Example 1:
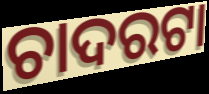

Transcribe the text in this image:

ଚାଦରଟା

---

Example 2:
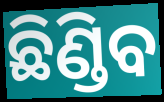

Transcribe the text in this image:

ଛିଣ୍ଡିବ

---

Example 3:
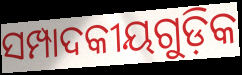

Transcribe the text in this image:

ସମ୍ପାଦକୀୟଗୁଡ଼ିକ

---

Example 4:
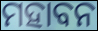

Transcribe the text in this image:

ମହାବନ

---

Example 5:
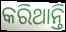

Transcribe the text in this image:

କରିଥାନ୍ତି